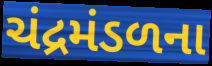
ચંદ્રમંડળના